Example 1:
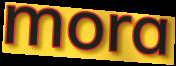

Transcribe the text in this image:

mora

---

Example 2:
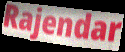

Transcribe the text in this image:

Rajendar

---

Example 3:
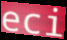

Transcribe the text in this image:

eci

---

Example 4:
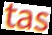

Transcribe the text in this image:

tas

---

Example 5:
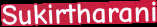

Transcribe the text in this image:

Sukirtharani